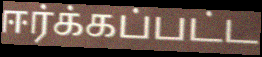
ஈர்க்கப்பட்ட